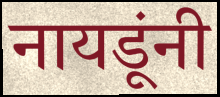
नायडूंनी